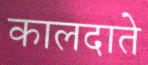
कालदाते